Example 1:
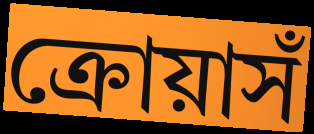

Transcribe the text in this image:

ক্রোয়াসঁ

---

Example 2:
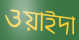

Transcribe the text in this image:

ওয়াইদা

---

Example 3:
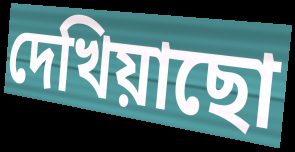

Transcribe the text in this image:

দেখিয়াছো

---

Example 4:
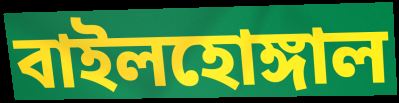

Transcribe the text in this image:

বাইলহোঙ্গাল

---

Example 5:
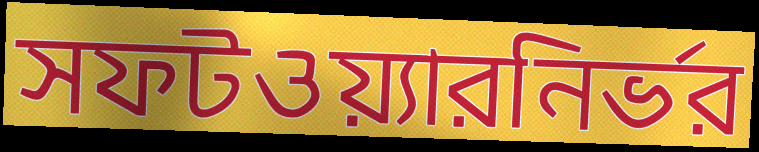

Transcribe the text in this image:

সফটওয়্যারনির্ভর